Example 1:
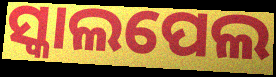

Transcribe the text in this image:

ସ୍କାଲପେଲ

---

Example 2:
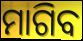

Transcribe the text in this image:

ମାଗିବ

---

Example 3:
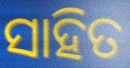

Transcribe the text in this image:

ସାହିତ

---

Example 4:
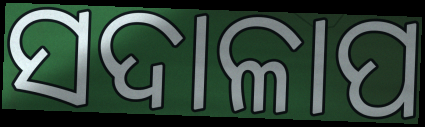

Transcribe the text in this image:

ସଦାଳାପ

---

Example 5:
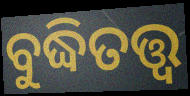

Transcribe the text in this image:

ବୁଦ୍ଧିତତ୍ତ୍ବ